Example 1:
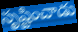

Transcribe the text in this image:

సృష్టించాడు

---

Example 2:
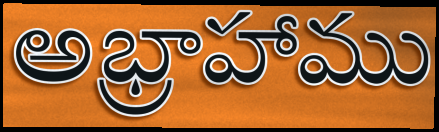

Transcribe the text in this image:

అభ్రాహాము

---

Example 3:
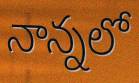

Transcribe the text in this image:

నాన్నలో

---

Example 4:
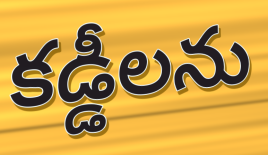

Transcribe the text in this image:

కడ్డీలను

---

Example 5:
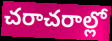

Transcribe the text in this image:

చరాచరాల్లో